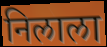
निलाला